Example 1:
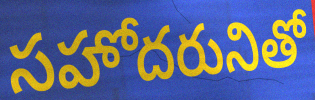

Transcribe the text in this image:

సహోదరునితో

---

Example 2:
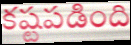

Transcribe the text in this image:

కష్టపడింది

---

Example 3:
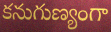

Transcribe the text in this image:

కనుగుణ్యంగా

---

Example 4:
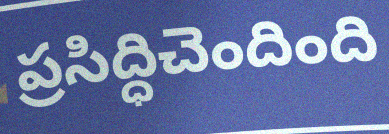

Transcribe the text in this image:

ప్రసిద్ధిచెందింది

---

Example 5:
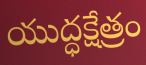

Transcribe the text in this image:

యుద్ధక్షేత్రం